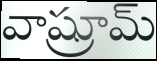
వాష్రూమ్